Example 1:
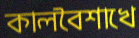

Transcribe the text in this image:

কালবৈশাখে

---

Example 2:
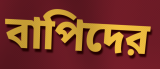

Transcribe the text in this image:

বাপিদের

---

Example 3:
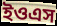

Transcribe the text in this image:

ইওএস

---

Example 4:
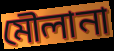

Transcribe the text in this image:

মৌলানা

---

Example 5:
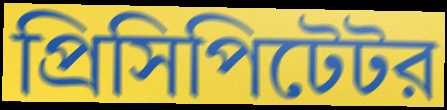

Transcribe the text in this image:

প্রিসিপিটেটর